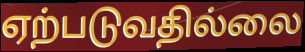
ஏற்படுவதில்லை